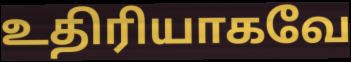
உதிரியாகவே